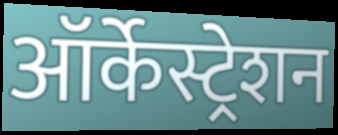
ऑर्केस्ट्रेशन